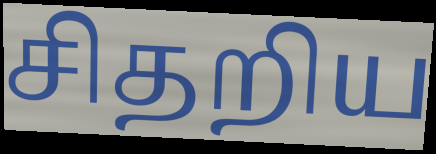
சிதறிய